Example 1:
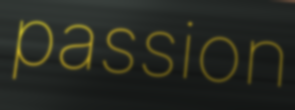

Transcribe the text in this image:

passion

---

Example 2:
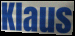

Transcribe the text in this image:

Klaus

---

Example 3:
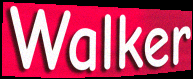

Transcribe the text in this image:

Walker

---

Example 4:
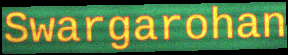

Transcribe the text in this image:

Swargarohan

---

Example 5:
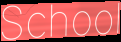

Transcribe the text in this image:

School